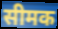
सीमक